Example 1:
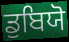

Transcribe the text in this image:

ਡੁਬਿਯੋ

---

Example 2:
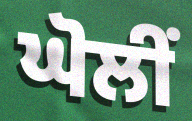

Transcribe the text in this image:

ਘੋਲੀਂ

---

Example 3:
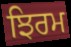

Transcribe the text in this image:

ਝਿਰਮ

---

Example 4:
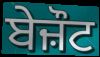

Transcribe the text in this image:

ਬੇਜ਼ੌਟ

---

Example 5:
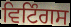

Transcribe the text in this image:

ਵਿਟਿੰਗਸ